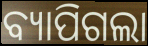
ବ୍ୟାପିଗଲା